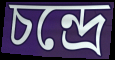
চন্দ্রে